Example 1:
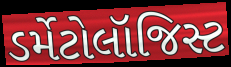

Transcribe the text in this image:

ડર્મેટોલૉજિસ્ટ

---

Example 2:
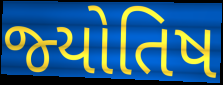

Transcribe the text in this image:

જ્‍યોતિષ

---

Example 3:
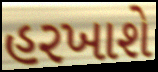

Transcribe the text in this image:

હરખાશે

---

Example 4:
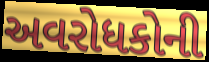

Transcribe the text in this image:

અવરોધકોની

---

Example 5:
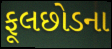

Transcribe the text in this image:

ફૂલછોડના